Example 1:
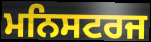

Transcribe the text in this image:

ਮਨਿਸਟਰਜ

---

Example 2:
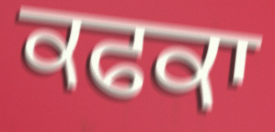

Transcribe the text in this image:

ਕਫਕਾ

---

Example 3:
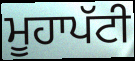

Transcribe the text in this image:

ਮੂਹਾਪੱਟੀ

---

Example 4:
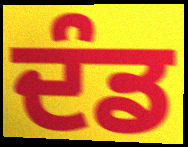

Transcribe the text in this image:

ਦੰਡ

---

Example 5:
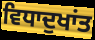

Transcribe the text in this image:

ਵਿਧਾਦੁਖਾਂਤ